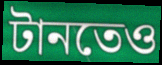
টানতেও